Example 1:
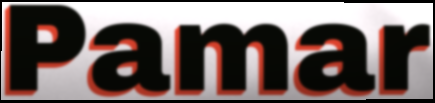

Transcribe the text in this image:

Pamar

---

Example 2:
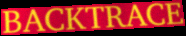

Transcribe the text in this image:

BACKTRACE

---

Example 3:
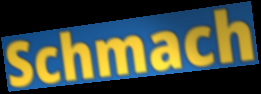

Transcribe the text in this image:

Schmach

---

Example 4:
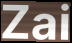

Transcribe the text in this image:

Zai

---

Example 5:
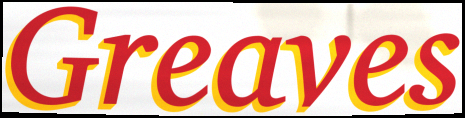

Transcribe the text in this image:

Greaves